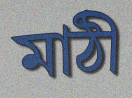
মাঠী